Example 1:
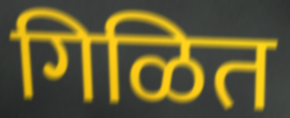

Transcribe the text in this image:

गिळित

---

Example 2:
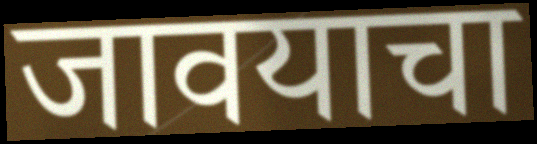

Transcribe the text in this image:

जावयाचा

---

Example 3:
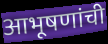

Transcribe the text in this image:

आभूषणांची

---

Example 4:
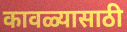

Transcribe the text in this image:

कावळ्यासाठी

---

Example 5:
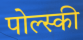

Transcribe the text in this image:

पोल्स्की